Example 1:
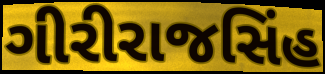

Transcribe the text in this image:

ગીરીરાજસિંહ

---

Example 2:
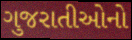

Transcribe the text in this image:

ગુજરાતીઓનો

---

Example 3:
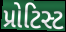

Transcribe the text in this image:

પ્રોટિસ્ટ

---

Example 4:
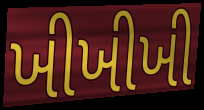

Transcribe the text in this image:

ખીખીખી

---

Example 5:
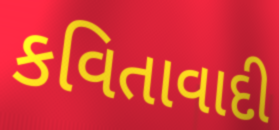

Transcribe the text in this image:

કવિતાવાદી